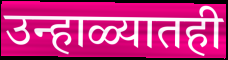
उन्हाळ्यातही